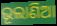
ଭୂଲାଣିଆ